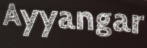
Ayyangar